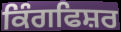
ਕਿੰਗਫਿਸ਼ਰ